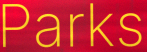
Parks